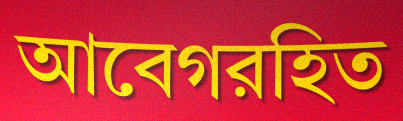
আবেগরহিত